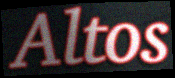
Altos